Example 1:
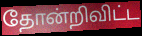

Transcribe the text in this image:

தோன்றிவிட்ட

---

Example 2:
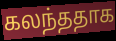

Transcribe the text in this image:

கலந்ததாக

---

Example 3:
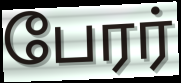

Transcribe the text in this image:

பேரர்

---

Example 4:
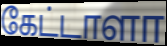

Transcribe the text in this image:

கேட்டாளா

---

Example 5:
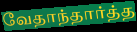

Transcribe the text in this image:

வேதாந்தார்த்த